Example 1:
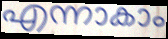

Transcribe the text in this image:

എന്നാകാം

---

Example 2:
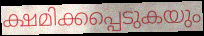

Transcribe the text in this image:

ക്ഷമിക്കപ്പെടുകയും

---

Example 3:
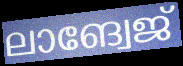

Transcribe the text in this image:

ലാങ്വേജ്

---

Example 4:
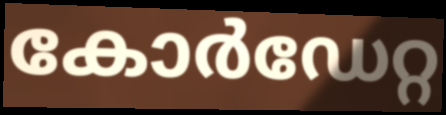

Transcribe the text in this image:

കോർഡേറ്റ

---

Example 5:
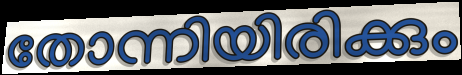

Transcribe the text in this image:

തോന്നിയിരിക്കും